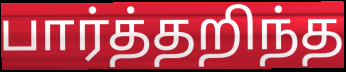
பார்த்தறிந்த